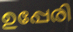
ഉപ്പേരി